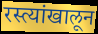
रस्त्यांखालून